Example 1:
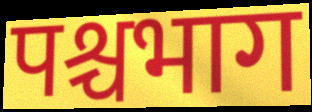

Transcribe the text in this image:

पश्चभाग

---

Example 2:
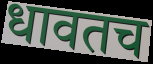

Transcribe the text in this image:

धावतच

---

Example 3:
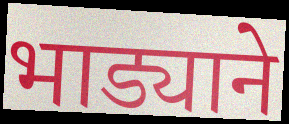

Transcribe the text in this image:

भाड्याने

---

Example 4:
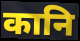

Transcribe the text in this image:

कानि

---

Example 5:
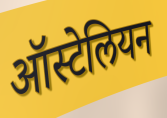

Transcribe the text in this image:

ऑस्टेलियन